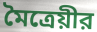
মৈত্রেয়ীর